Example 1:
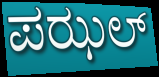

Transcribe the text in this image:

ಪಝಲ್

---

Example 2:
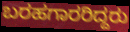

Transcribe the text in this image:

ಬರಹಗಾರರಿದ್ದರು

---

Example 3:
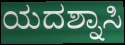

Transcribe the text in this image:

ಯದಶ್ನಾಸಿ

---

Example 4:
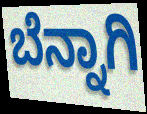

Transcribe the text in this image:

ಬೆನ್ನಾಗಿ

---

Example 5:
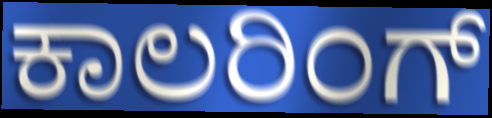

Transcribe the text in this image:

ಕಾಲರಿಂಗ್